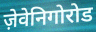
ज़ेवेनिगोरोड